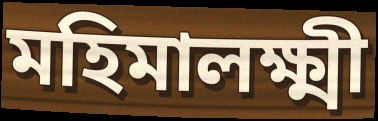
মহিমালক্ষ্মী